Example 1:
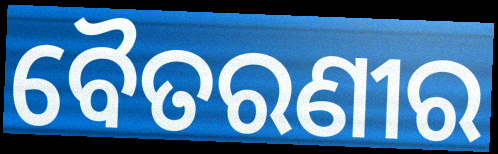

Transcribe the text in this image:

ବୈତରଣୀର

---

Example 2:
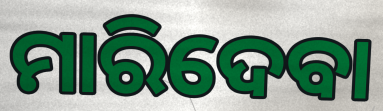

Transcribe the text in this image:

ମାରିଦେବା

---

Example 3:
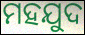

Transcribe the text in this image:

ମହଯୁଦ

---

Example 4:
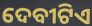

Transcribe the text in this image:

ଦେବୀଟିଏ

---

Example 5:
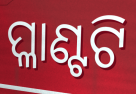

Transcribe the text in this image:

ପ୍ଳାଣ୍ଟଟି